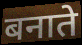
बनाते